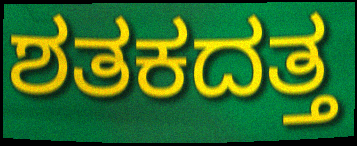
ಶತಕದತ್ತ